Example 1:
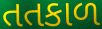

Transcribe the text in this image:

તતકાળ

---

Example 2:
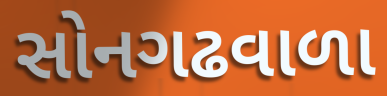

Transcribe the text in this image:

સોનગઢવાળા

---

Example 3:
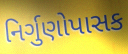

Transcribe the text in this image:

નિર્ગુણોપાસક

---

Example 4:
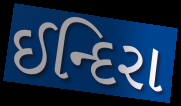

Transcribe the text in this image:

ઈન્દિરા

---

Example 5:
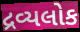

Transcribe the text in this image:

દ્રવ્યલોક